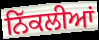
ਨਿੱਕਲੀਆਂ